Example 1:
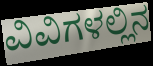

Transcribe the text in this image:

ವಿವಿಗಳಲ್ಲಿನ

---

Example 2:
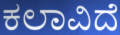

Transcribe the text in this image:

ಕಲಾವಿದೆ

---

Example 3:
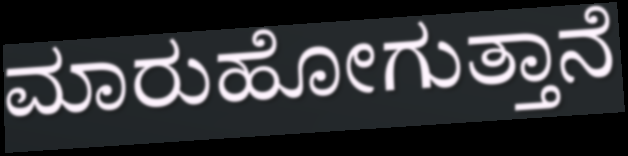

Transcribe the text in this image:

ಮಾರುಹೋಗುತ್ತಾನೆ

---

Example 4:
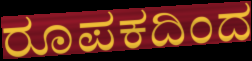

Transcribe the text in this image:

ರೂಪಕದಿಂದ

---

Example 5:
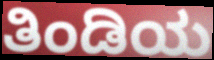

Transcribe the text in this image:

ತಿಂಡಿಯ